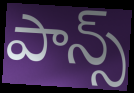
పాన్స్